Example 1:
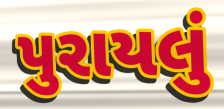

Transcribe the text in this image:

પુરાયલું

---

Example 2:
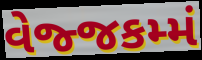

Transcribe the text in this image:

વેજ્જકમ્મં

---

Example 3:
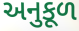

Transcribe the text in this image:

અનુકૂળ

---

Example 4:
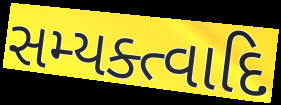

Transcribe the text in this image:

સમ્યક્ત્વાદિ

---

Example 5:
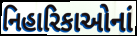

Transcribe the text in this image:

નિહારિકાઓનાં